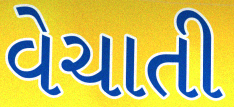
વેચાતી